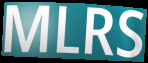
MLRS